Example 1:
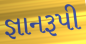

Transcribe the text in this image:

જ્ઞાનરૂપી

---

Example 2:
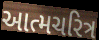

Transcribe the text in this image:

આત્મચરિત્ર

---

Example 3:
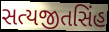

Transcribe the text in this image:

સત્યજીતસિંહ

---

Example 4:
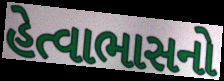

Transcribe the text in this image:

હેત્વાભાસનો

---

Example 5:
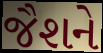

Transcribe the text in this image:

જૈશને